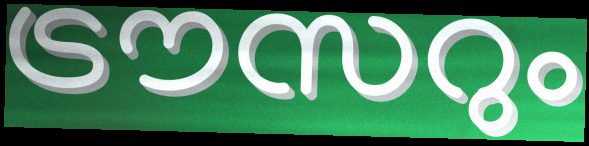
ട്രൗസറും